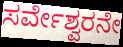
ಸರ್ವೇಶ್ವರನೇ